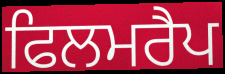
ਫਿਲਮਰੈਪ